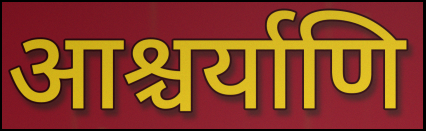
आश्चर्याणि